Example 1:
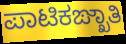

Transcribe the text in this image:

ಪಾಟಿಕಙ್ಖಾತಿ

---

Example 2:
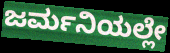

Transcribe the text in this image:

ಜರ್ಮನಿಯಲ್ಲೇ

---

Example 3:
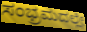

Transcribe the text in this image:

ಸಂಭ್ರಮದಲ್ಲೇ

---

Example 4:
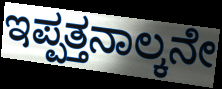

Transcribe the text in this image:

ಇಪ್ಪತ್ತನಾಲ್ಕನೇ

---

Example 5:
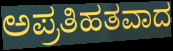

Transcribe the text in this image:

ಅಪ್ರತಿಹತವಾದ